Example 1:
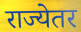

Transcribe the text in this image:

राज्येतर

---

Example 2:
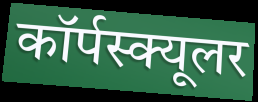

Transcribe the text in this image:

कॉर्पस्क्यूलर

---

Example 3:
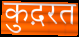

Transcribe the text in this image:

कुद़रत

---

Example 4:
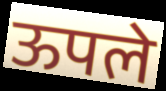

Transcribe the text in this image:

ऊपले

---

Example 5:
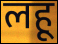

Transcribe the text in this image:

लहू